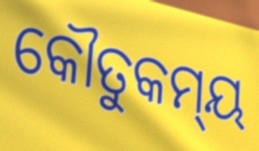
କୌତୁକମ୍‍ୟ